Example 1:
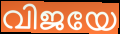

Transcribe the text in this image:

വിജയേ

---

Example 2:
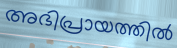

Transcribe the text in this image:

അഭിപ്രായത്തിൽ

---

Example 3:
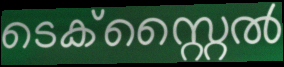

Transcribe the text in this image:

ടെക്സ്റ്റൈൽ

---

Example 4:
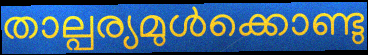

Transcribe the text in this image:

താല്പര്യമുൾക്കൊണ്ടു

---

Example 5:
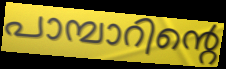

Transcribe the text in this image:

പാമ്പാറിന്റെ